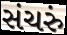
સંચરું